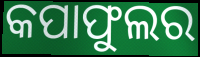
କପାଫୁଲର